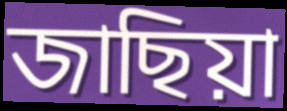
জাছিয়া